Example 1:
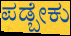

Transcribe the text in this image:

ಪಡ್ಬೇಕು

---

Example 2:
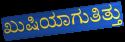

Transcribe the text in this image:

ಖುಷಿಯಾಗುತಿತ್ತು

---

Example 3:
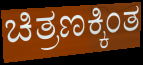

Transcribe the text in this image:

ಚಿತ್ರಣಕ್ಕಿಂತ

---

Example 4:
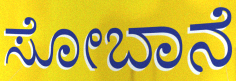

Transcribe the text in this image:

ಸೋಬಾನೆ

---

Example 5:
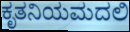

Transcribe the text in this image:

ಕೃತನಿಯಮದಲಿ